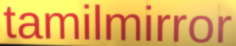
tamilmirror